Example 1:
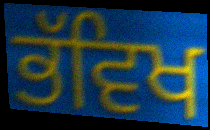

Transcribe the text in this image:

ਭੱਵਿਖ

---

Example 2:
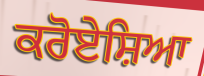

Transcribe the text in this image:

ਕਰੋਏਸ਼ਿਆ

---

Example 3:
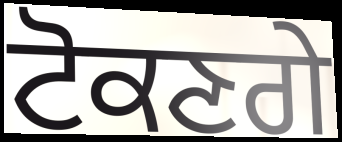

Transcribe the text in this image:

ਟੋਕਣਗੇ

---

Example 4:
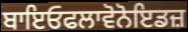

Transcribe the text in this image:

ਬਾਇਓਫਲਾਵੋਨੋਇਡਜ਼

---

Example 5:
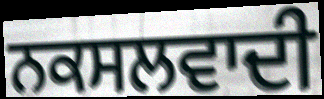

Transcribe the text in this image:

ਨਕਸਲਵਾਦੀ